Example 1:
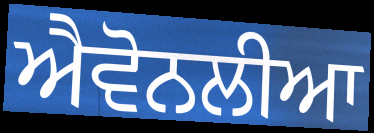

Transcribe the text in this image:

ਐਵੋਨਲੀਆ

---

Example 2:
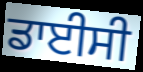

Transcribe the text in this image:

ਡਾਈਸੀ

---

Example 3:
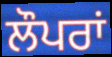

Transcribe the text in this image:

ਲੌਪਰਾਂ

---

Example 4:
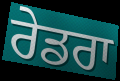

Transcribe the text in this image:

ਰੇਡਰਾ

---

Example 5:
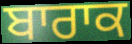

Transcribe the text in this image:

ਬਾਰਾਕ